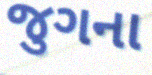
જુગના